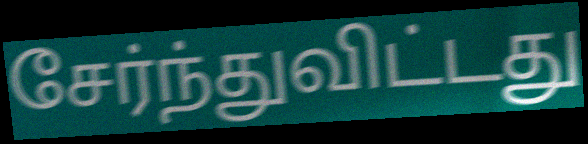
சேர்ந்துவிட்டது